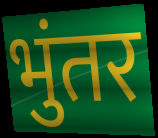
भुंतर